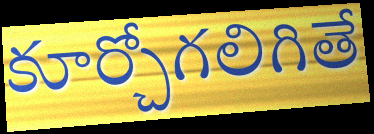
కూర్చోగలిగితే